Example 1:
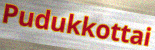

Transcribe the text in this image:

Pudukkottai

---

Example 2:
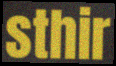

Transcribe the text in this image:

sthir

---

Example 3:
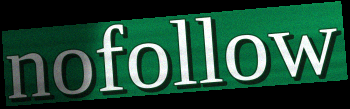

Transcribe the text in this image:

nofollow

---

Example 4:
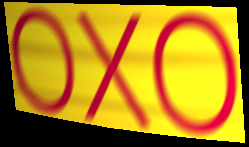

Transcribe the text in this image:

OXO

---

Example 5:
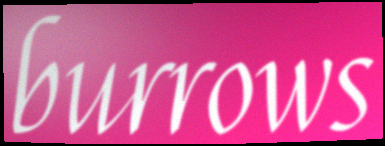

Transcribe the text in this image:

burrows